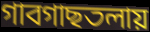
গাবগাছতলায়